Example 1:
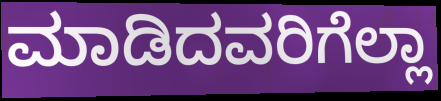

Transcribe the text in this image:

ಮಾಡಿದವರಿಗೆಲ್ಲಾ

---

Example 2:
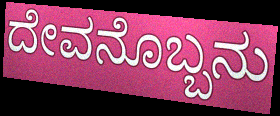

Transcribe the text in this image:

ದೇವನೊಬ್ಬನು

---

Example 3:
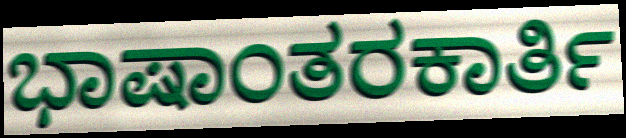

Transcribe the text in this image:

ಭಾಷಾಂತರಕಾರ್ತಿ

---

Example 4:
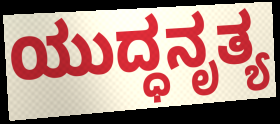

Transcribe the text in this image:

ಯುದ್ಧನೃತ್ಯ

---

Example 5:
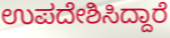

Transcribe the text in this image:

ಉಪದೇಶಿಸಿದ್ದಾರೆ